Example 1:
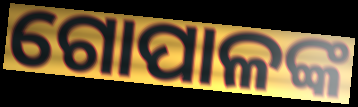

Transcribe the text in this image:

ଗୋପାଳଙ୍କ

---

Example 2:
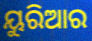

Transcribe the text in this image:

ୟୁରିଆର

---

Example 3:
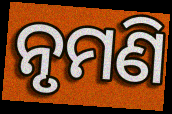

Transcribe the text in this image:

ନୃମଣି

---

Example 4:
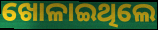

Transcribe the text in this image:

ଖୋଳାଇଥିଲେ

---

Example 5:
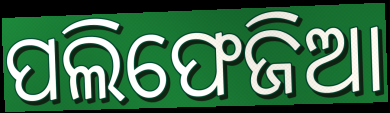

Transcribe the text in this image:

ପଲିଫେଜିଆ